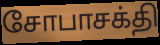
சோபாசக்தி